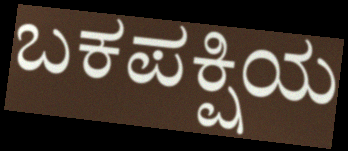
ಬಕಪಕ್ಷಿಯ